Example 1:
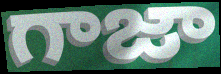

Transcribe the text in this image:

గాజా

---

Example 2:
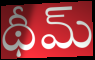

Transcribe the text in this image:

థీమ్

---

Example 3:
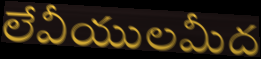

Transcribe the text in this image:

లేవీయులమీద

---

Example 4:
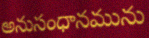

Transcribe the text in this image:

అనుసంధానమును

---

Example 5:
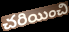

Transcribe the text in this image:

చరియించి